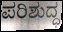
ಪರಿಶುದ್ಧ